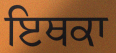
ਇਥਕਾ